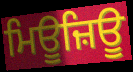
ਮਿਊਜ਼ਿਊ